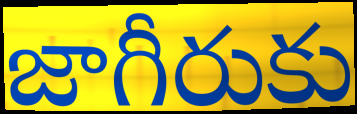
జాగీరుకు